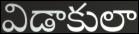
విడాకులా